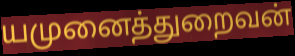
யமுனைத்துறைவன்